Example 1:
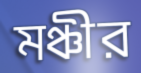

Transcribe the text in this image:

মঞ্চীর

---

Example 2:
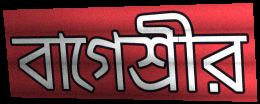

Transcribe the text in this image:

বাগেশ্রীর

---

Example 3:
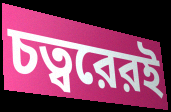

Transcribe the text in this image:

চত্বরেরই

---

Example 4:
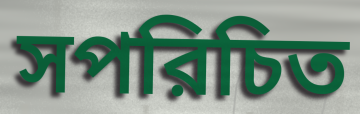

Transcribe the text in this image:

সপরিচিত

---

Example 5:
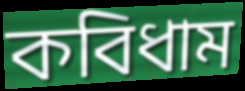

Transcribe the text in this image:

কবিধাম